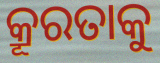
କ୍ରୂରତାକୁ